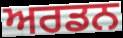
ਅਰਡਨ